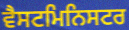
ਵੈਸਟਮਿਨਿਸਟਰ